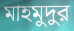
মাহমুদুর